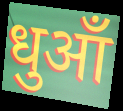
धुआँ